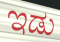
ಇಡು